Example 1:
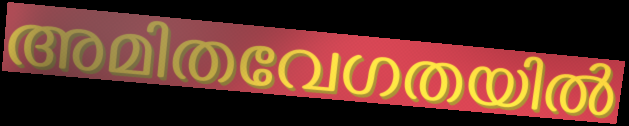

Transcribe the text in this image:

അമിതവേഗതയിൽ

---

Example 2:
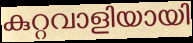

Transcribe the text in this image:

കുറ്റവാളിയായി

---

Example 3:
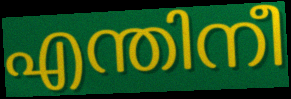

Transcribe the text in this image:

എന്തിനീ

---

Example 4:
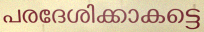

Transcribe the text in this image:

പരദേശിക്കാകട്ടെ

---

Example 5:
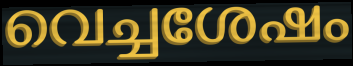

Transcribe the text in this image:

വെച്ചശേഷം